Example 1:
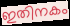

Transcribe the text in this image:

ഇതിനകം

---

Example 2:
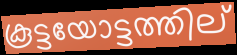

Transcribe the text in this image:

കൂട്ടയോട്ടത്തില്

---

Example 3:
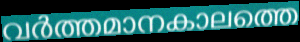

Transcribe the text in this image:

വർത്തമാനകാലത്തെ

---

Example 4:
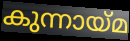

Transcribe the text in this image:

കുന്നായ്മ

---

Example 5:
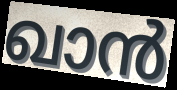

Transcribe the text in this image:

ഖാൻ